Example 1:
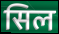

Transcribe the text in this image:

सिल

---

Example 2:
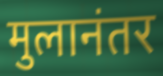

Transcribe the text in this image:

मुलानंतर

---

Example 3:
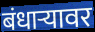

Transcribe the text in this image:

बंधाऱ्यावर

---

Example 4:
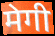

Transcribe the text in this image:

मेगी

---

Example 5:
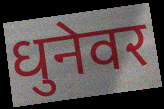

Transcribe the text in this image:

धुनेवर